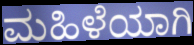
ಮಹಿಳೆಯಾಗಿ